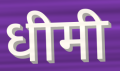
धीमी